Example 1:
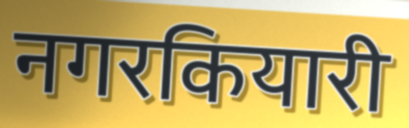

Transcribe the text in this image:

नगरकियारी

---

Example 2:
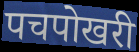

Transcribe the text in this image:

पचपोखरी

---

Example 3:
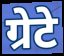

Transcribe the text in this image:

ग्रेटे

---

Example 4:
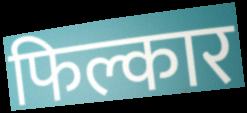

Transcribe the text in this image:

फिल्कार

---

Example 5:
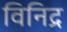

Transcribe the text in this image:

विनिद्र